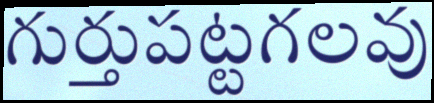
గుర్తుపట్టగలవు